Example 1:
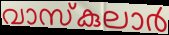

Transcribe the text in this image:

വാസ്കുലാർ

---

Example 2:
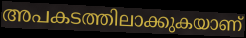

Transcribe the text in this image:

അപകടത്തിലാക്കുകയാണ്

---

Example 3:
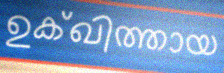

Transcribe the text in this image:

ഉക്ഖിത്തായ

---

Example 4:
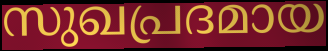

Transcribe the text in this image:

സുഖപ്രദമായ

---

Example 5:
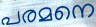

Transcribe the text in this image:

പരമനെ